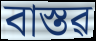
বাস্তৱ